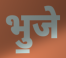
भु॒जे